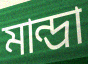
মান্দ্রা